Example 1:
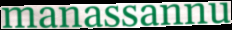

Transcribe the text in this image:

manassannu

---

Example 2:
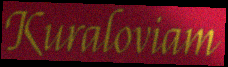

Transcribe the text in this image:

Kuraloviam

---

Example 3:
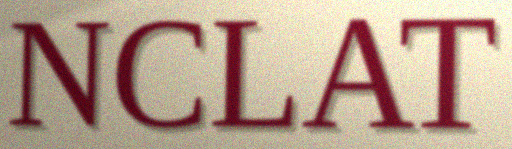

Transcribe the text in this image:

NCLAT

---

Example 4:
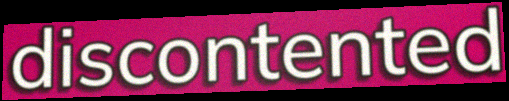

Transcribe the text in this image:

discontented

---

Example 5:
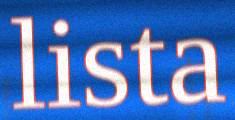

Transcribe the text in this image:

lista